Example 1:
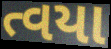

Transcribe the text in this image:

ત્વયા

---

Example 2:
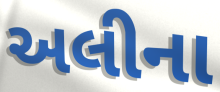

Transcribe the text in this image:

અલીના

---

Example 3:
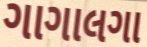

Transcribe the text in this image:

ગાગાલગા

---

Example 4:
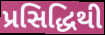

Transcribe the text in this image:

પ્રસિદ્ધિથી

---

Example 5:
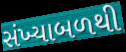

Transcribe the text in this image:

સંખ્યાબળથી